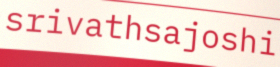
srivathsajoshi